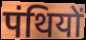
पंथियों